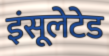
इंसूलेटेड